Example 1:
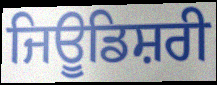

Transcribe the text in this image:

ਜਿਊਡਿਸ਼ਰੀ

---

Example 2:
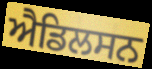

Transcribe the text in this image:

ਐਡਿਲਸਨ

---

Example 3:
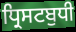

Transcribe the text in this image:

ਧ੍ਰਿਸਟਬੁਧੀ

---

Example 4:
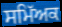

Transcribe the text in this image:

ਸਮਿੱਅਕ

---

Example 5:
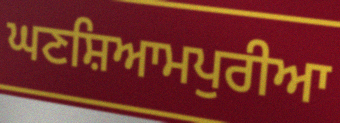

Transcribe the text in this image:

ਘਣਸ਼ਿਆਮਪੁਰੀਆ